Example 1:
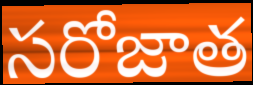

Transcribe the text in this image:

సరోజాత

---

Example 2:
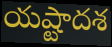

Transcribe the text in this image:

యష్టాదశ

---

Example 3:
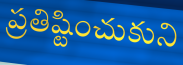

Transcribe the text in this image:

ప్రతిష్టించుకుని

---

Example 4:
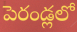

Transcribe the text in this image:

పెరండ్లలో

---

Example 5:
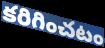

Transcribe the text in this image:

కరిగించటం